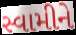
સ્વામીને